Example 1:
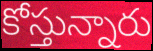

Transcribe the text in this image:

కోస్తున్నారు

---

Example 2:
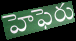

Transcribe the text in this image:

హెఫెరు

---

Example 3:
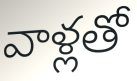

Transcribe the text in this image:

వాళ్లతో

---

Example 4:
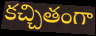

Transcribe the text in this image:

కచ్చితంగా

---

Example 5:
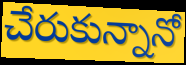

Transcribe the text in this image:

చేరుకున్నానో